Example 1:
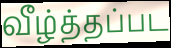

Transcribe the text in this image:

வீழ்த்தப்பட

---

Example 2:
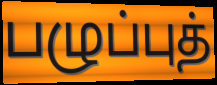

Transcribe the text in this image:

பழுப்புத்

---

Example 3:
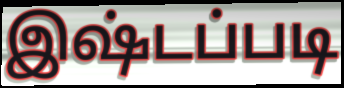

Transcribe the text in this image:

இஷ்டப்படி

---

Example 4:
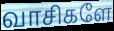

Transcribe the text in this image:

வாசிகளே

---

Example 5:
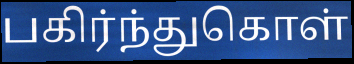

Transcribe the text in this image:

பகிர்ந்துகொள்